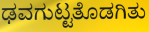
ಢವಗುಟ್ಟತೊಡಗಿತು